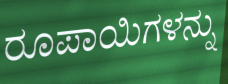
ರೂಪಾಯಿಗಳನ್ನು